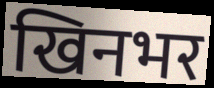
खिनभर